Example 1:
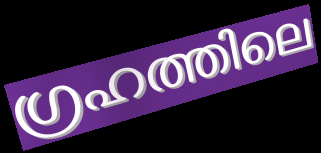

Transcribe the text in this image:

ഗ്രഹത്തിലെ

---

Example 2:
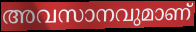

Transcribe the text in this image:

അവസാനവുമാണ്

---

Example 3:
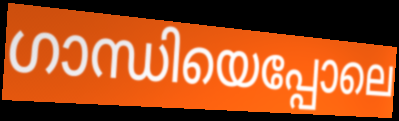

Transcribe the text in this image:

ഗാന്ധിയെപ്പോലെ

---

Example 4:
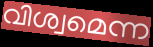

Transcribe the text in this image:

വിശ്വമെന്ന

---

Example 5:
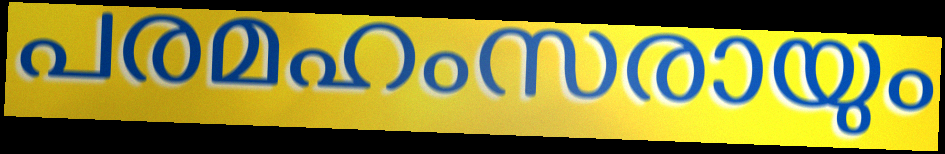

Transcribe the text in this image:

പരമഹംസരായും